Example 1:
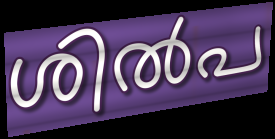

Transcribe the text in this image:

ശിൽപ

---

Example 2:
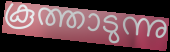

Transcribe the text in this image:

കൂത്താടുന്നു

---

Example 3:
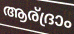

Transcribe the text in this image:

ആര്ദ്രാം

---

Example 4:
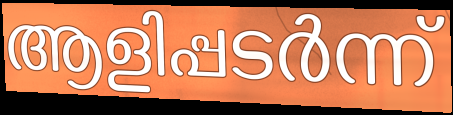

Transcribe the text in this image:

ആളിപ്പടർന്ന്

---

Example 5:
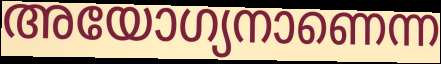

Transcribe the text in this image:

അയോഗ്യനാണെന്ന